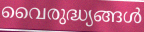
വൈരുദ്ധ്യങ്ങൾ